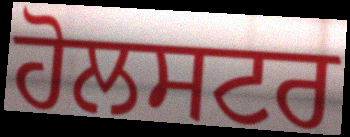
ਹੋਲਸਟਰ